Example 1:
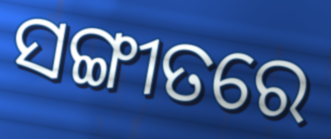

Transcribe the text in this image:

ସଙ୍ଗୀତରେ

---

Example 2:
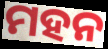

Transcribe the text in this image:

ମହନ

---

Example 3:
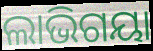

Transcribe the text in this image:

ଲାଭିଗୟା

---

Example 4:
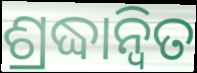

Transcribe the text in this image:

ଶ୍ରଦ୍ଧାନ୍ୱିତ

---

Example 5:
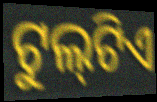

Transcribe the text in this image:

ଟୁଲ୍‍ଟିଏ